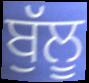
ਬੁੱਲੂ